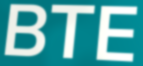
BTE